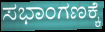
ಸಭಾಂಗಣಕ್ಕೆ